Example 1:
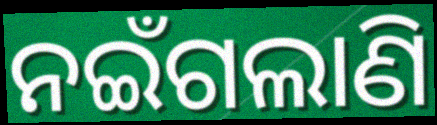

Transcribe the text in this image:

ନଇଁଗଲାଣି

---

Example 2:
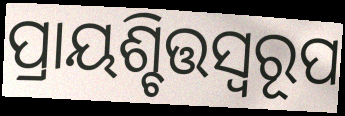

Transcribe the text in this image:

ପ୍ରାୟଶ୍ଚିତ୍ତସ୍ୱରୂପ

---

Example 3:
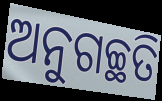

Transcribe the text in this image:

ଅନୁଗଚ୍ଛତି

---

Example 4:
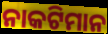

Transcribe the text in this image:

ନାକଟିମାନ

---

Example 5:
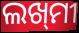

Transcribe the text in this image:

ଲଖ୍‌ମୀ